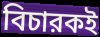
বিচারকই